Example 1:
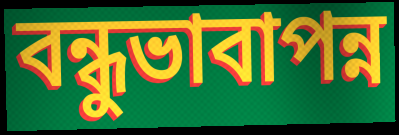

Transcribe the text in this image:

বন্ধুভাবাপন্ন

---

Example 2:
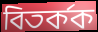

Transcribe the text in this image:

বিতৰ্কক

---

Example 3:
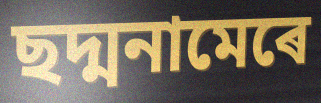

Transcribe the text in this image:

ছদ্মনামেৰে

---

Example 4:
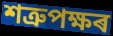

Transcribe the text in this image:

শত্ৰুপক্ষৰ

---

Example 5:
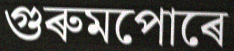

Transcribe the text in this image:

গুৰুমপোৰে